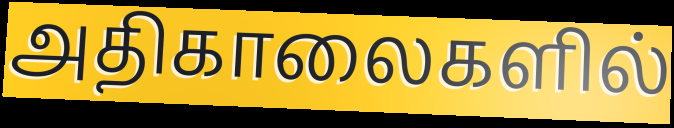
அதிகாலைகளில்